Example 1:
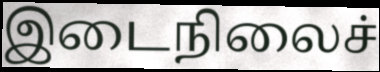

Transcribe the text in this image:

இடைநிலைச்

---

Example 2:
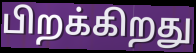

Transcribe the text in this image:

பிறக்கிறது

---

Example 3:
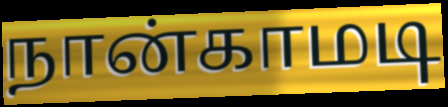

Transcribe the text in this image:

நான்காமடி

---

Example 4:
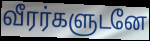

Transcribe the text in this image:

வீரர்களுடனே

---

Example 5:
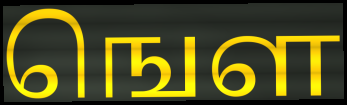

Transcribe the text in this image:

ஙௌ